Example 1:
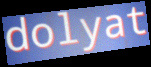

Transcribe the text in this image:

dolyat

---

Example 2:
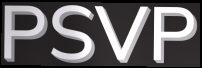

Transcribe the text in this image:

PSVP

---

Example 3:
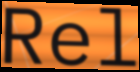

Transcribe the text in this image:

Rel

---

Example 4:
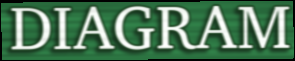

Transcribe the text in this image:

DIAGRAM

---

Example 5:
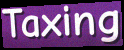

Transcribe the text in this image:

Taxing